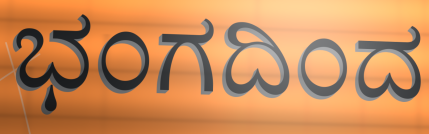
ಭಂಗದಿಂದ